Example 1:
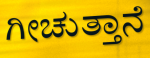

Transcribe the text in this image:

ಗೀಚುತ್ತಾನೆ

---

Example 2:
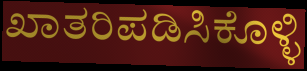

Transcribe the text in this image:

ಖಾತರಿಪಡಿಸಿಕೊಳ್ಳಿ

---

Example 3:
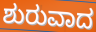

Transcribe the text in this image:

ಶುರುವಾದ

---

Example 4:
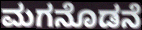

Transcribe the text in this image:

ಮಗನೊಡನೆ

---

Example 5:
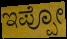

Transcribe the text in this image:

ಇಪ್ಪೋ